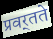
प्रवर्तते